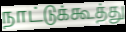
நாட்டுக்கூத்து